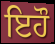
ਇਹੌ